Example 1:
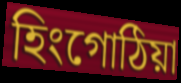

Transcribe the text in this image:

হিংগোঠিয়া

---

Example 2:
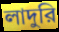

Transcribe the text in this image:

লাদুরি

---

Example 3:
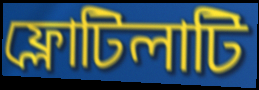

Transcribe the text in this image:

ফ্লোটিলাটি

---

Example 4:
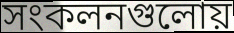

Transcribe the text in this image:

সংকলনগুলোয়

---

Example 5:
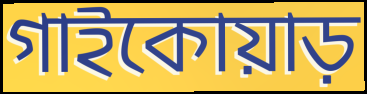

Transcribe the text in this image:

গাইকোয়াড়